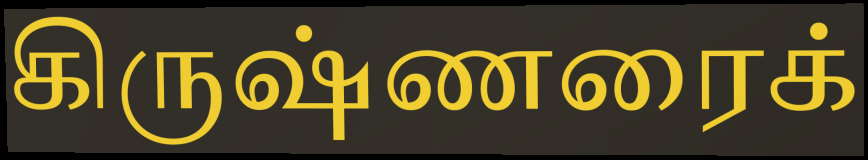
கிருஷ்ணரைக்